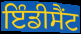
ਇੰਡੀਸੈਂਟ